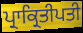
ਪ੍ਰਾਕ੍ਰਿਤੀਪਤੀ